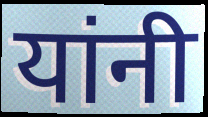
यांनी